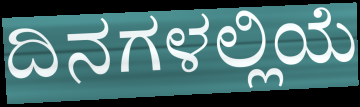
ದಿನಗಳಲ್ಲಿಯೆ